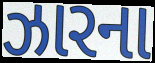
ઝારના